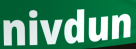
nivdun